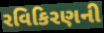
રવિકિરણની